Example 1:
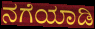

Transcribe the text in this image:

ನಗೆಯಾಡಿ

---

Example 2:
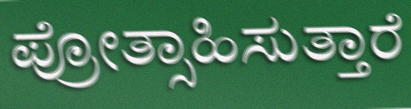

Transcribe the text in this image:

ಪ್ರೋತ್ಸಾಹಿಸುತ್ತಾರೆ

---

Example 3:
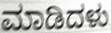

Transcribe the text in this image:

ಮಾಡಿದಳು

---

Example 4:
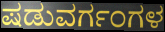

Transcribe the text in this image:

ಷಡುವರ್ಗಂಗಳ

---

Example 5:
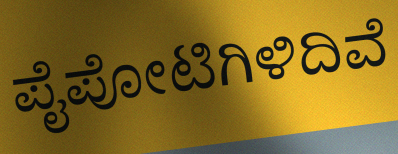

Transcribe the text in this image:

ಪೈಪೋಟಿಗಿಳಿದಿವೆ